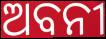
ଅବନୀ